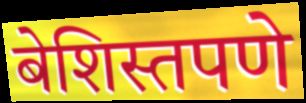
बेशिस्तपणे